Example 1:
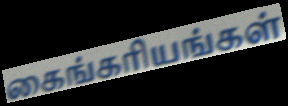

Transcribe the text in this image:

கைங்கரியங்கள்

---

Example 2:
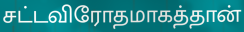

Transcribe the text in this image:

சட்டவிரோதமாகத்தான்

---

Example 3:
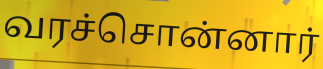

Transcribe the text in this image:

வரச்சொன்னார்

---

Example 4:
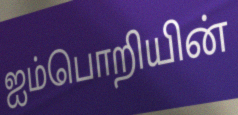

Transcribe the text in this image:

ஐம்பொறியின்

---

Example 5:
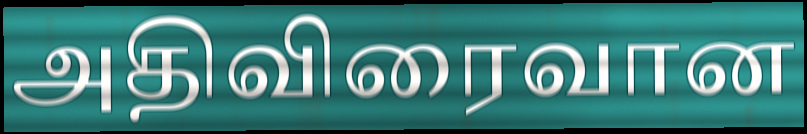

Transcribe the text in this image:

அதிவிரைவான